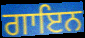
ਗਾਇਨ